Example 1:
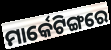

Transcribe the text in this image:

ମାର୍କେଟିଙ୍ଗରେ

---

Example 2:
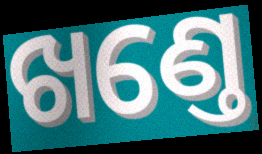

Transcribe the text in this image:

ଖଣ୍ତେ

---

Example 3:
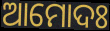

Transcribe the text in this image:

ଆମୋଦଃ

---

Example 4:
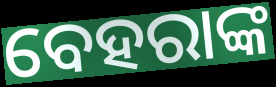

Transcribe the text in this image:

ବେହରାଙ୍କ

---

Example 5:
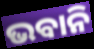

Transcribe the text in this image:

ଭବାନି